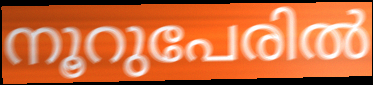
നൂറുപേരിൽ